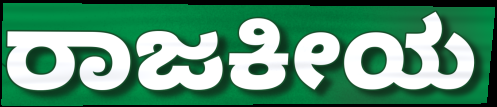
ರಾಜಕೀಯ